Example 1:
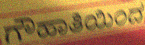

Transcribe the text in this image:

ಗೌಹಾತಿಯಿಂದ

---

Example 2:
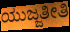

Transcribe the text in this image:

ಯುಜ್ಜತೀತಿ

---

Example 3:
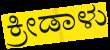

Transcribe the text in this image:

ಕ್ರೀಡಾಳು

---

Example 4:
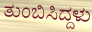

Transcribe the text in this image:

ತುಂಬಿಸಿದ್ದಳು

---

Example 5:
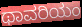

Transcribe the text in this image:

ಥಾವರಿಯಂ